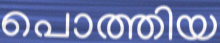
പൊത്തിയ